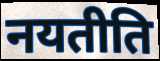
नयतीति